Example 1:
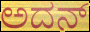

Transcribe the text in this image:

ಅದನ್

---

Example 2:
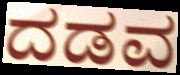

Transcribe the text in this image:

ದಡವ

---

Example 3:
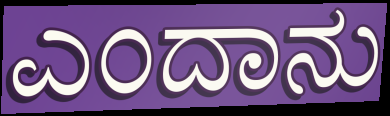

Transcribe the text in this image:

ಎಂದಾನು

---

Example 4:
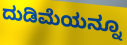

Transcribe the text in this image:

ದುಡಿಮೆಯನ್ನೂ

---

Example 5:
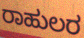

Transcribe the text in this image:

ರಾಹುಲರ